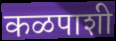
कळपाशी